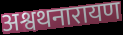
अश्वथनारायण